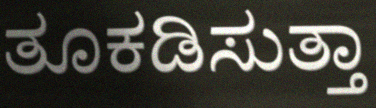
ತೂಕಡಿಸುತ್ತಾ